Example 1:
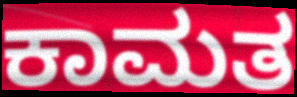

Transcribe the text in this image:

ಕಾಮತ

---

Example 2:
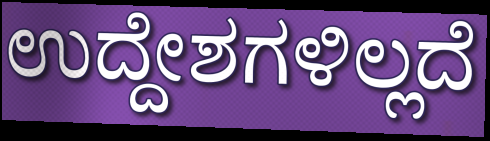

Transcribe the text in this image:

ಉದ್ದೇಶಗಳಿಲ್ಲದೆ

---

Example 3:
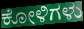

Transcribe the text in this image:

ಕೋಳಿಗಳು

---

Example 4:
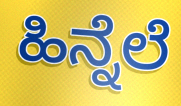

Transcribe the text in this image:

ಹಿನ್ನೆಲೆ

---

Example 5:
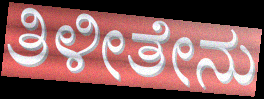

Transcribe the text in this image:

ತಿಳೀತೇನು